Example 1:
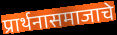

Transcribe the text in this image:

प्रार्थनासमाजाचे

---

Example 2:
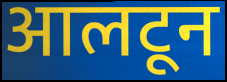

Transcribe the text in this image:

आलटून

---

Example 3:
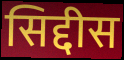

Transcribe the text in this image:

सिद्दीस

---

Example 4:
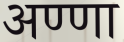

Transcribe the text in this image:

अण्णा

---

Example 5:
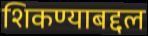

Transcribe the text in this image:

शिकण्याबद्दल